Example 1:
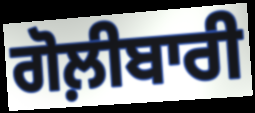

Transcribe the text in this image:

ਗੋਲ਼ੀਬਾਰੀ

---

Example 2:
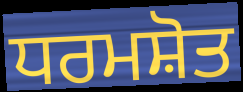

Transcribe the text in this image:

ਧਰਮਸ਼ੋਤ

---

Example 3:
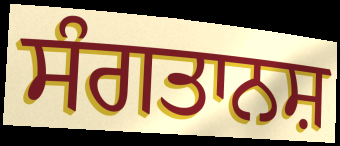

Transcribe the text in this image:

ਸੰਗਤਾਨਸ਼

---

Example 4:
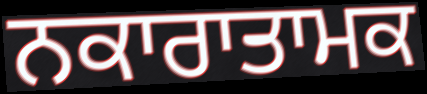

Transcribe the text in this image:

ਨਕਾਰਾਤਾਮਕ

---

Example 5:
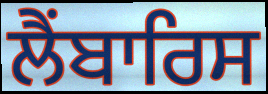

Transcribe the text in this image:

ਲੈਂਬਾਰਿਸ